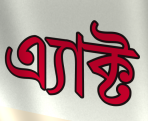
এ্যাক্ট